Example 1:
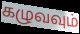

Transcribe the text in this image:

கழுவவும்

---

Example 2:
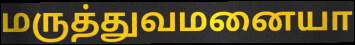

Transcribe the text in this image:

மருத்துவமனையா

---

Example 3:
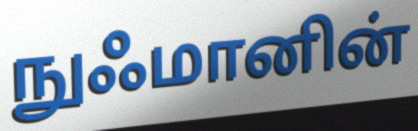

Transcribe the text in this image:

நுஃமானின்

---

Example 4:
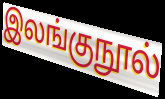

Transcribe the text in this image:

இலங்குநூல்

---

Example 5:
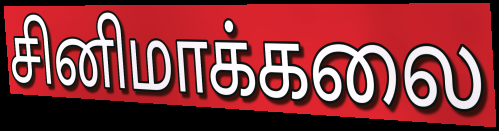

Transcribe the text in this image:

சினிமாக்கலை